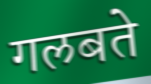
गलबते